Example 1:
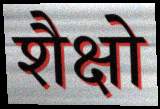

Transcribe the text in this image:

शैक्षो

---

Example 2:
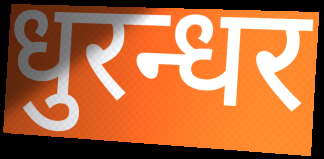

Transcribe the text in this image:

धुरन्धर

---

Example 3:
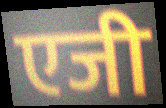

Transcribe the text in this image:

एजी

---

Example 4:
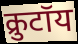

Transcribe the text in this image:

क्रुटॉय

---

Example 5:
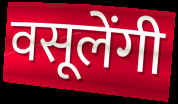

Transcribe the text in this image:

वसूलेंगी